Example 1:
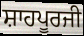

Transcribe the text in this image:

ਸ਼ਾਹਪੂਰਜੀ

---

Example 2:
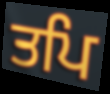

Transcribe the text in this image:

ਤਪਿ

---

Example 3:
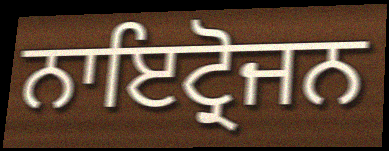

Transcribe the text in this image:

ਨਾਇਟ੍ਰੋਜਨ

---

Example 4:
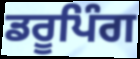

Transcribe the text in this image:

ਡਰੂਪਿੰਗ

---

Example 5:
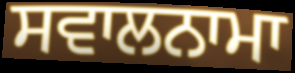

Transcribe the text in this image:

ਸਵਾਲਨਾਮਾ